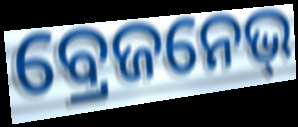
ବ୍ରେଜନେଭ୍